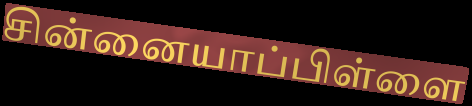
சின்னையாப்பிள்ளை